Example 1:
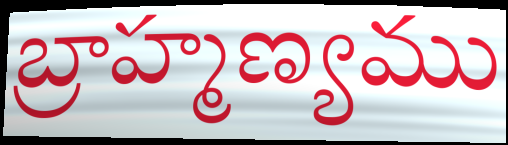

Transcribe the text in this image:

బ్రాహ్మణ్యము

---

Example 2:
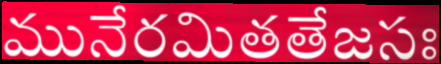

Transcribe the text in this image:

మునేరమితతేజసః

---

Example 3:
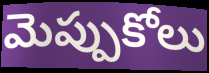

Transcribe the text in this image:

మెప్పుకోలు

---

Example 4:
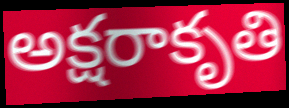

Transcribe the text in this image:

అక్షరాకృతి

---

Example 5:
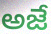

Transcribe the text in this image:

అజే